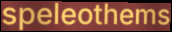
speleothems